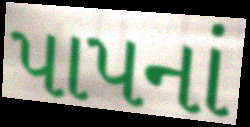
પાપનાં